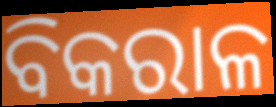
ବିକରାଳ